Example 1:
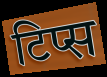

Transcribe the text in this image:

टिप्‍स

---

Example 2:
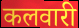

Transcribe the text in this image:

कलवारी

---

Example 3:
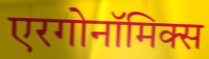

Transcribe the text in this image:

एरगोनॉमिक्स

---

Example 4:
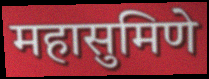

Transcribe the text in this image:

महासुमिणे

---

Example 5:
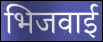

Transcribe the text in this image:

भिजवाई